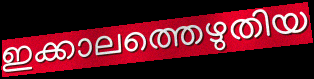
ഇക്കാലത്തെഴുതിയ